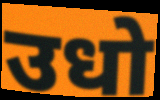
उधो